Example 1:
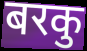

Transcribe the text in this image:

बरकु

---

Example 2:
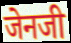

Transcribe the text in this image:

जेनजी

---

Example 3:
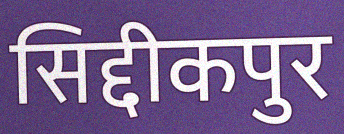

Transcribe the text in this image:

सिद्दीकपुर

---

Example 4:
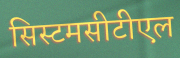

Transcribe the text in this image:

सिस्टमसीटीएल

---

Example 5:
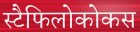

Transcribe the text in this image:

स्टैफिलोकोकस